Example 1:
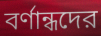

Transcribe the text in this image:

বর্ণান্ধদের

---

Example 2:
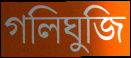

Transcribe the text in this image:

গলিঘুজি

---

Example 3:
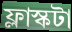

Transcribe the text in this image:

ফ্লাস্কটা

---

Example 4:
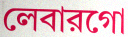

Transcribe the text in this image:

লেবারগো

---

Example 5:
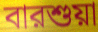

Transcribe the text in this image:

বারশুয়া